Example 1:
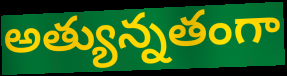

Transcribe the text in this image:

అత్యున్నతంగా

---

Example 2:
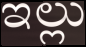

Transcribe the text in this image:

ఇల్లు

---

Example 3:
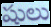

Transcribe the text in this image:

షులు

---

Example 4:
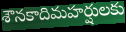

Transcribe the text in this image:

శౌనకాదిమహర్షులకు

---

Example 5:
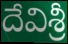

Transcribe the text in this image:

దేవిశ్రీ